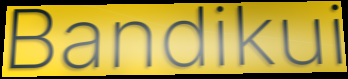
Bandikui